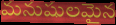
మనుషులమైన